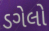
ડગેલો